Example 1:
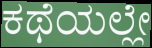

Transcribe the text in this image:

ಕಥೆಯಲ್ಲೇ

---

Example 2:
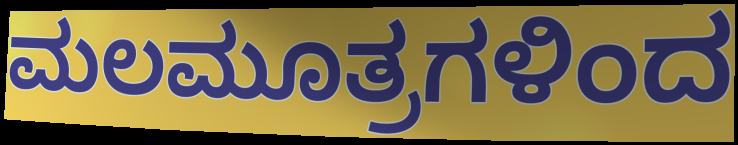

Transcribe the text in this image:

ಮಲಮೂತ್ರಗಳಿಂದ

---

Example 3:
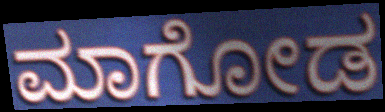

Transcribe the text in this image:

ಮಾಗೋಡ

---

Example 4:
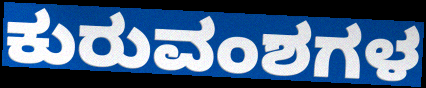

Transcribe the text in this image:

ಕುರುವಂಶಗಳ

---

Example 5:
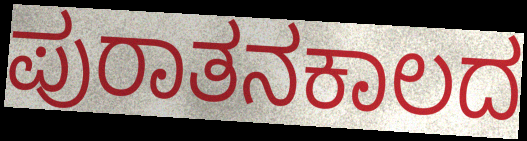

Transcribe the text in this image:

ಪುರಾತನಕಾಲದ